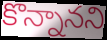
కొన్నానని